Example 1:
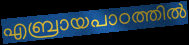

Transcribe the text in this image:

എബ്രായപാഠത്തിൽ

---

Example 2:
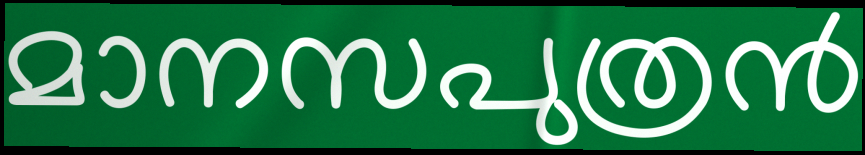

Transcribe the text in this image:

മാനസപുത്രൻ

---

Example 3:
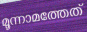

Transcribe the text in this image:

മൂന്നാമത്തേത്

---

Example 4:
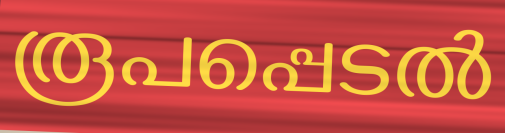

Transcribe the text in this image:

രൂപപ്പെടൽ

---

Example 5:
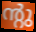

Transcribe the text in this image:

ന്റു